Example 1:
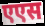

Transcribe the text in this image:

एएस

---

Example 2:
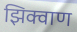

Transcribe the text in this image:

झिक्वाण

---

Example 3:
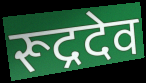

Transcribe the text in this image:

रूद्रदेव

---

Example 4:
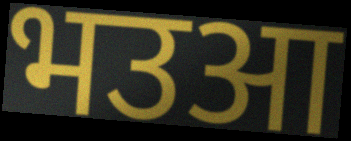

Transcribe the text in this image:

भउआ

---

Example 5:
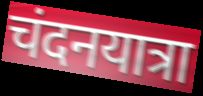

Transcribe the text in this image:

चंदनयात्रा